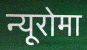
न्यूरोमा